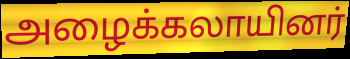
அழைக்கலாயினர்